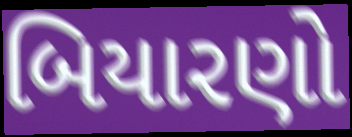
બિયારણો